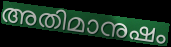
അതിമാനുഷം